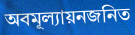
অবমূল্যায়নজনিত